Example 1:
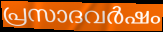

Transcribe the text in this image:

പ്രസാദവർഷം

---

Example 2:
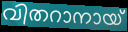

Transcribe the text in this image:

വിതറാനായ്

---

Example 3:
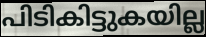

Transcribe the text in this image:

പിടികിട്ടുകയില്ല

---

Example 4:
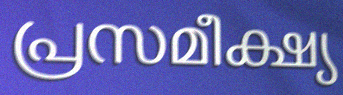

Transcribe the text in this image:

പ്രസമീക്ഷ്യ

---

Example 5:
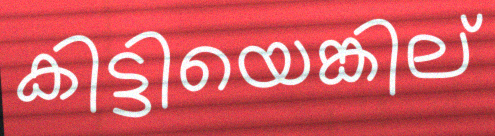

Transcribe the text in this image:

കിട്ടിയെങ്കില്